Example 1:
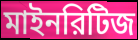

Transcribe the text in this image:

মাইনরিটিজ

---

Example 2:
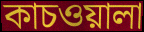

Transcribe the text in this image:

কাচওয়ালা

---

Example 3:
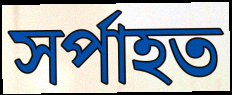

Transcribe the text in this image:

সর্পাহত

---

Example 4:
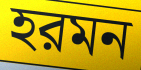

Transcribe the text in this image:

হরমন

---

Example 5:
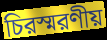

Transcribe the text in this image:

চিরস্মরণীয়